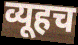
व्यूहच